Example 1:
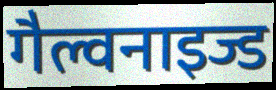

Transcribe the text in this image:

गैल्वनाइज्ड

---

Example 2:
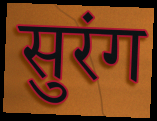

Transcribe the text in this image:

सुरंग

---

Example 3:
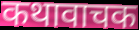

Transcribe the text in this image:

कथावाचक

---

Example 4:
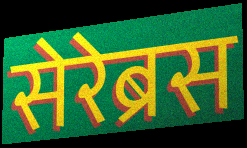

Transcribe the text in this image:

सेरेब्रस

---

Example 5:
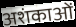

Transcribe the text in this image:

अशंकाओं